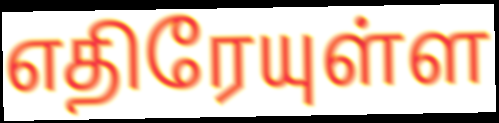
எதிரேயுள்ள